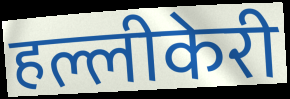
हल्लीकेरी